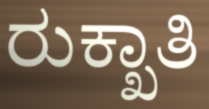
ರುಕ್ಖಾತಿ